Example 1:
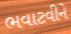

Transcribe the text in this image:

ભવાટવીને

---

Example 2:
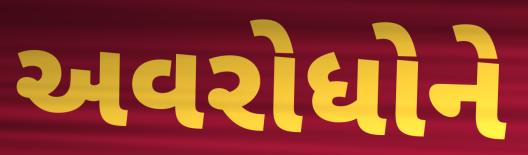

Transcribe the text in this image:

અવરોધોને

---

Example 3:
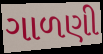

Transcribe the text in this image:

ગાળણી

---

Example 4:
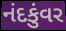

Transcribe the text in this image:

નંદકુંવર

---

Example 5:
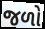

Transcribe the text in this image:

જળો